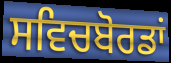
ਸਵਿਚਬੋਰਡਾਂ